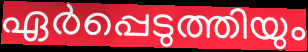
ഏർപ്പെടുത്തിയും